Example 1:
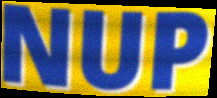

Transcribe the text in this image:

NUP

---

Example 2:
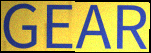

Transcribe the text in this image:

GEAR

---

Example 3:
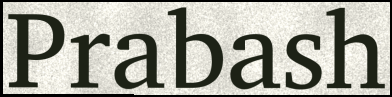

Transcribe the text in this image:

Prabash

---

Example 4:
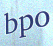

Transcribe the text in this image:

bpo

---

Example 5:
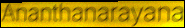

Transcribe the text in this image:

Ananthanarayana